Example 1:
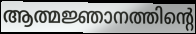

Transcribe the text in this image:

ആത്മജ്ഞാനത്തിന്റെ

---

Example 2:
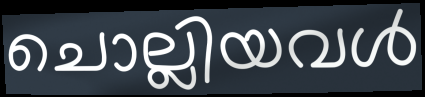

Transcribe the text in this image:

ചൊല്ലിയവൾ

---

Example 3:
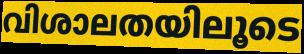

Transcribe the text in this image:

വിശാലതയിലൂടെ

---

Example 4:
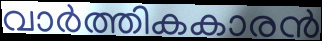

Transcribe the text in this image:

വാർത്തികകാരൻ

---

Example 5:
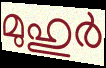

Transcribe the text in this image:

മുഹുർ